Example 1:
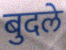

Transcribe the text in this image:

बुदले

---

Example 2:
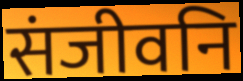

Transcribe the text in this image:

संजीवनि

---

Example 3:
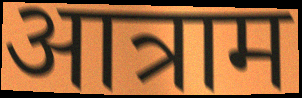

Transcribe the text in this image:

आत्राम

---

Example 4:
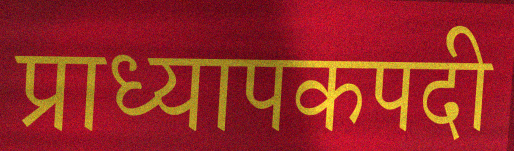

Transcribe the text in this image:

प्राध्यापकपदी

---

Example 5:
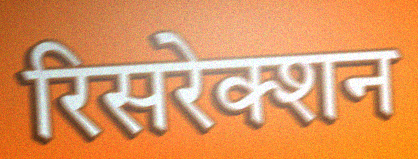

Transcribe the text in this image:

रिसरेक्शन